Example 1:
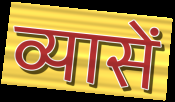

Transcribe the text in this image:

व्यासें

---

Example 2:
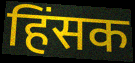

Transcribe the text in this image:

हिंसक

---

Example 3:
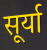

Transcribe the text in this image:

सूर्या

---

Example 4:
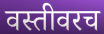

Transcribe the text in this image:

वस्तीवरच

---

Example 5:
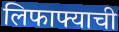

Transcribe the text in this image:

लिफाफ्याची